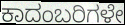
ಕಾದಂಬರಿಗಳೇ